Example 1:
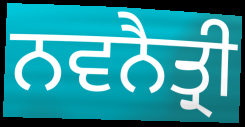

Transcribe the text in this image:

ਨਵਨੈਤ੍ਰੀ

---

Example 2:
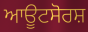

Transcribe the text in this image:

ਆਊਟਸੋਰਸ਼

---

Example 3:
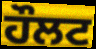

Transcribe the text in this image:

ਹੌਲਟ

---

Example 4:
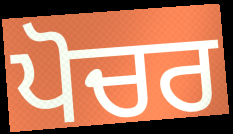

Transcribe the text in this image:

ਪੋਚਰ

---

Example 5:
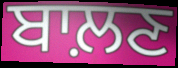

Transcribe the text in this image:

ਬਾਲ਼ਣ